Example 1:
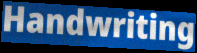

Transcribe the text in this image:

Handwriting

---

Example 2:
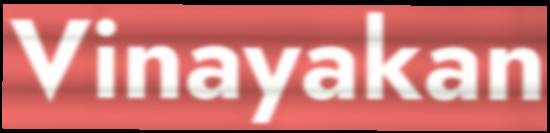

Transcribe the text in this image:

Vinayakan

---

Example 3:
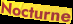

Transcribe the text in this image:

Nocturne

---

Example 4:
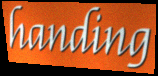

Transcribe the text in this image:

handing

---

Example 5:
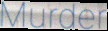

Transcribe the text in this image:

Murder